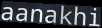
aanakhi